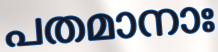
പതമാനാഃ